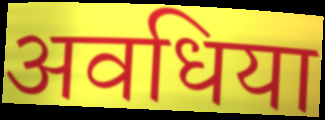
अवधिया